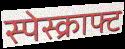
स्पेस्क्राफ्ट